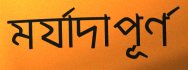
মর্যাদাপূর্ণ